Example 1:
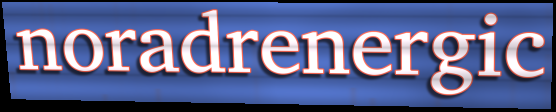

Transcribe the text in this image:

noradrenergic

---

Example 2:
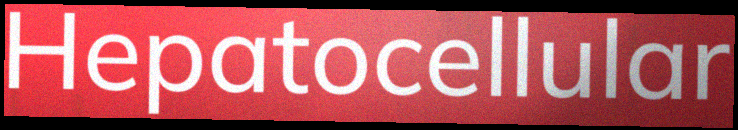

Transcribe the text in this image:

Hepatocellular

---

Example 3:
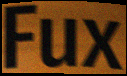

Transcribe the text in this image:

Fux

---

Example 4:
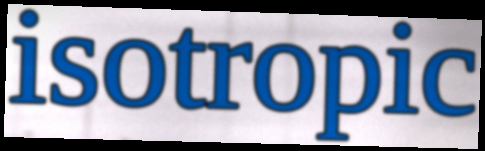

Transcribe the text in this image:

isotropic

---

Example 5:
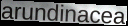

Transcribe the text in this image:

arundinacea